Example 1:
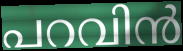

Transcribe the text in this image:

പറവിൻ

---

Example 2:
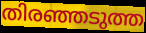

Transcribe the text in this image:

തിരഞ്ഞടുത്ത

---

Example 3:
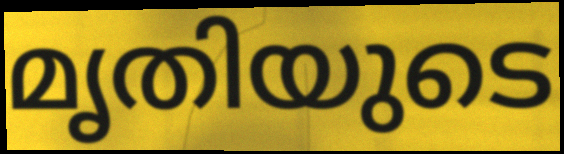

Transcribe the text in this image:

മൃതിയുടെ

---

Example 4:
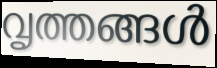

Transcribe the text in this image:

വൃത്തങ്ങൾ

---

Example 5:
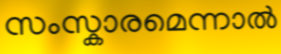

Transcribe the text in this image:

സംസ്കാരമെന്നാൽ